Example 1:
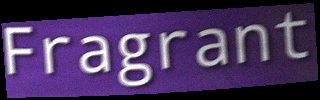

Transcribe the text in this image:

Fragrant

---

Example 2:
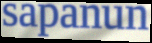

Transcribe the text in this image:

sapanun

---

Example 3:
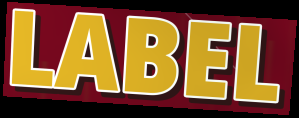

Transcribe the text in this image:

LABEL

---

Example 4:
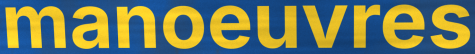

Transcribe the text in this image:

manoeuvres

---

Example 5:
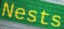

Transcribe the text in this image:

Nests